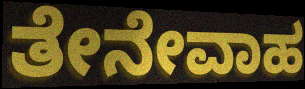
ತೇನೇವಾಹ